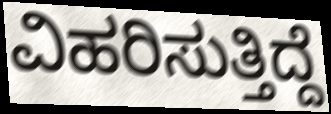
ವಿಹರಿಸುತ್ತಿದ್ದೆ